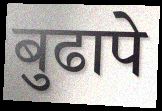
बुढापे